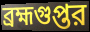
ব্রহ্মগুপ্তর